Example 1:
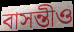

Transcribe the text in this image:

বাসন্তীও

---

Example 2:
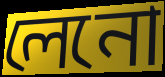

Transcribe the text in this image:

লেনো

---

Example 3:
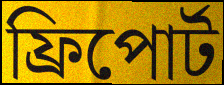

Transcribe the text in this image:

ফ্রিপোর্ট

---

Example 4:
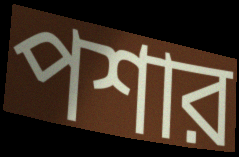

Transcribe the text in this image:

পশার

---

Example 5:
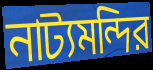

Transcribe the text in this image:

নাট্যমন্দির